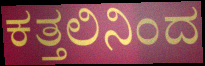
ಕತ್ತಲಿನಿಂದ